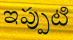
ఇప్పుటి